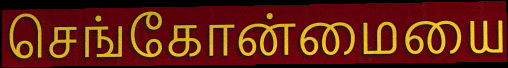
செங்கோன்மையை